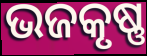
ଭଜକୃଷ୍ଣ